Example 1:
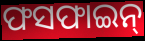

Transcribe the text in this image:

ଫସଫାଇନ୍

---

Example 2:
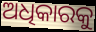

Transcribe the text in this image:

ଅଧିକାରକୁ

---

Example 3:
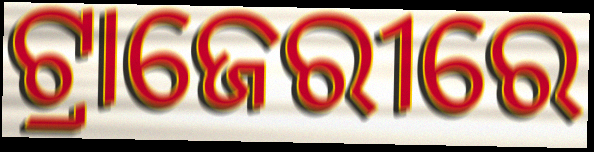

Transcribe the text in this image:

ଟ୍ରାଜେରୀରେ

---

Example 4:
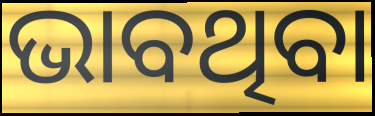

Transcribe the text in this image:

ଭାବଥିବା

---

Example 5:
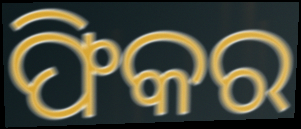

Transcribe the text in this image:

ଫିକର